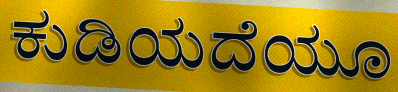
ಕುಡಿಯದೆಯೂ